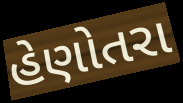
હેણોતરા